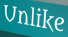
Unlike